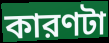
কারণটা